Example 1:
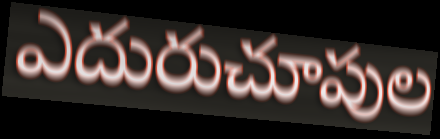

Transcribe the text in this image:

ఎదురుచూపుల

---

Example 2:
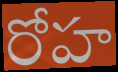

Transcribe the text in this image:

రోహ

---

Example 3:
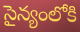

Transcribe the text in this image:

సైన్యంలోకి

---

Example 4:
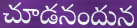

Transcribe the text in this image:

చూడనందున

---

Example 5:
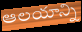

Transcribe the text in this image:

ఆలయాన్ని